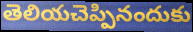
తెలియచెప్పినందుకు